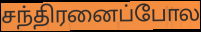
சந்திரனைப்போல